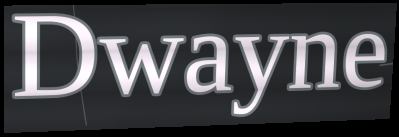
Dwayne